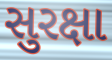
સુરક્ષા